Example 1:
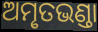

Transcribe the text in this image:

ଅମୃତଭଣ୍ଡା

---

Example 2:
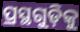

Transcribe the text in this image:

ପ୍ରସ୍ଥଗୁଡ଼ିକୁ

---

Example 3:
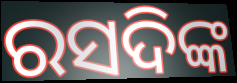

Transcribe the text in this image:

ରସଦିଙ୍କ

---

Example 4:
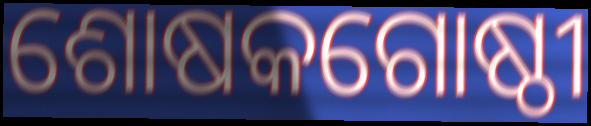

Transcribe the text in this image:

ଶୋଷକଗୋଷ୍ଠୀ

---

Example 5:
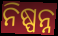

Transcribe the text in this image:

ନିଷ୍ପନ୍ନ